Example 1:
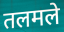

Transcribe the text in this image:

तलमले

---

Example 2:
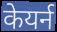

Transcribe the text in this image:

केयर्न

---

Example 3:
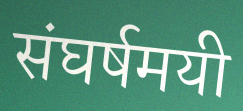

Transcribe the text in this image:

संघर्षमयी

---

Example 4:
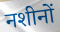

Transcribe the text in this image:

नशीनों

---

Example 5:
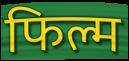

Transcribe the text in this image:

फिल्‍म